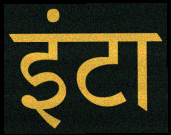
इंटा